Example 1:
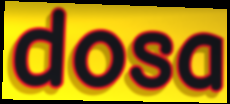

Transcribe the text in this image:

dosa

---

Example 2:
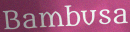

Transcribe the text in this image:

Bambusa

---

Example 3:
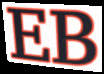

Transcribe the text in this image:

EB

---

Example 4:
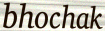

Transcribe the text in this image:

bhochak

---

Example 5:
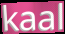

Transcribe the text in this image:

kaal